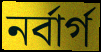
নর্বার্গ